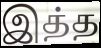
இத்த